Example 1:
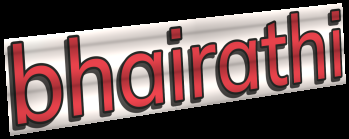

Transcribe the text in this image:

bhairathi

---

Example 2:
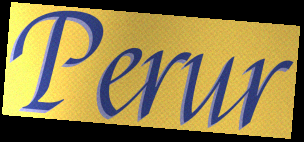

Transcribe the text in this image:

Perur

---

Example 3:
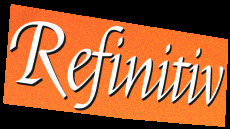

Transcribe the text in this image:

Refinitiv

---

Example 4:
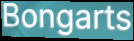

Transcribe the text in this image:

Bongarts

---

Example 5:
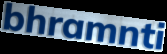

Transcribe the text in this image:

bhramnti